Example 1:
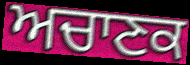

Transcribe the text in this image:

ਅਚਾਣਕ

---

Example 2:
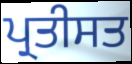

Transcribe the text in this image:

ਪ੍ਰਤੀਸਤ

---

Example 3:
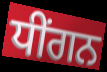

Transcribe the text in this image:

ਧੀਂਗਨ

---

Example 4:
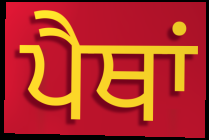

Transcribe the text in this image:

ਪੈਥਾਂ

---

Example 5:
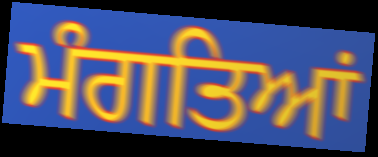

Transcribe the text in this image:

ਮੰਗਤਿਆਂ